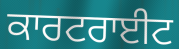
ਕਾਰਟਰਾਈਟ